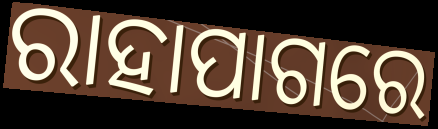
ରାହାପାଗରେ